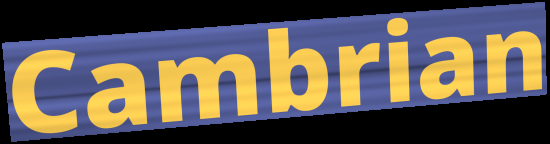
Cambrian